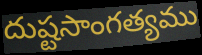
దుష్టసాంగత్యము